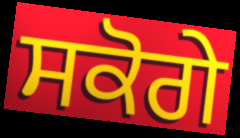
ਸਕੋਗੇ